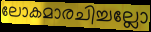
ലോകമാരചിച്ചല്ലോ